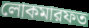
লোকমারফত